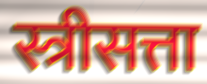
स्त्रीसत्ता